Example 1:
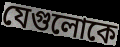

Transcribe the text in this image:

যেগুলোকে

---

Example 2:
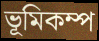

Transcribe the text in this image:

ভূমিকম্প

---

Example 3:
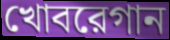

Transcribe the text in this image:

খোবরেগান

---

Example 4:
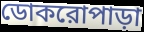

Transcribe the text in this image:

ডোকরোপাড়া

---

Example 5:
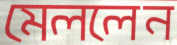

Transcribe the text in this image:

মেললেন